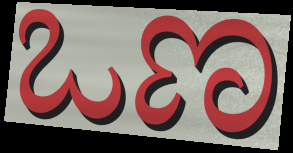
ಒಣ